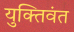
युक्तिवंत